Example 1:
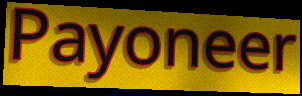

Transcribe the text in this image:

Payoneer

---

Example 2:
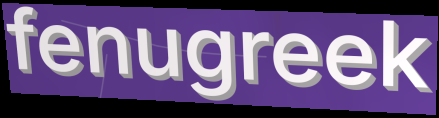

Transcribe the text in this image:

fenugreek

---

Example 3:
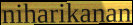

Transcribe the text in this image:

niharikanan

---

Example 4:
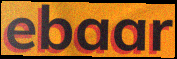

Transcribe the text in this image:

ebaar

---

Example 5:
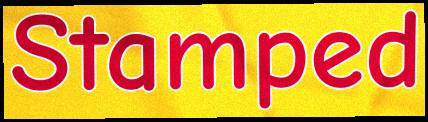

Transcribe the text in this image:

Stamped